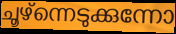
ചൂഴ്ന്നെടുക്കുന്നോ